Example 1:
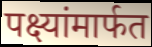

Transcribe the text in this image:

पक्ष्यांमार्फत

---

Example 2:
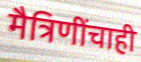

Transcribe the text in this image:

मैत्रिणींचाही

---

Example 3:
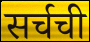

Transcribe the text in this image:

सर्चची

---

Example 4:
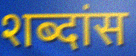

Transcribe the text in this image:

शब्दांस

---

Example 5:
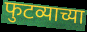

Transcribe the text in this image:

फुटव्याच्या